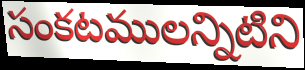
సంకటములన్నిటిని